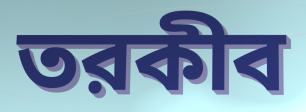
তরকীব